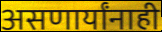
असणार्यांनाही